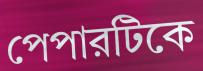
পেপারটিকে